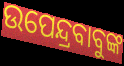
ଉପେନ୍ଦ୍ରବାବୁଙ୍କ